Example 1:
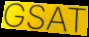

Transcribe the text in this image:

GSAT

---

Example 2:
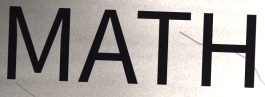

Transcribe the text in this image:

MATH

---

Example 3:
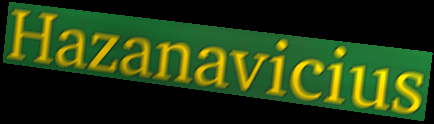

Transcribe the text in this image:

Hazanavicius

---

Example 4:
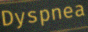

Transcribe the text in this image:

Dyspnea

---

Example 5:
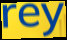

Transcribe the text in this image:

rey